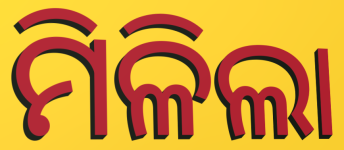
ମିଳିଲା